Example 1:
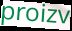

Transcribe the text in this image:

proizv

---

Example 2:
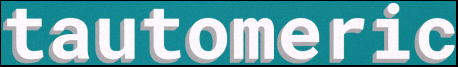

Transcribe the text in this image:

tautomeric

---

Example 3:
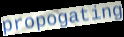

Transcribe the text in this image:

propogating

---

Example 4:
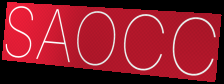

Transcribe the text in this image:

SAOCC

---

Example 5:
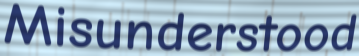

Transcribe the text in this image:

Misunderstood